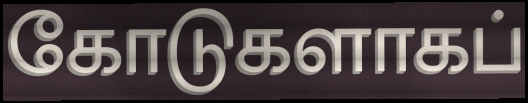
கோடுகளாகப்